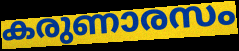
കരുണാരസം